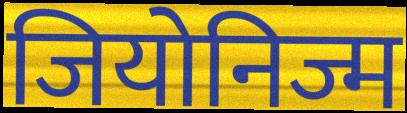
जियोनिज्म